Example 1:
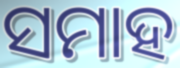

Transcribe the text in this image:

ସମାହ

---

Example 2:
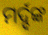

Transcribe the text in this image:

ମର୍ଦ୍ଦଙ୍କ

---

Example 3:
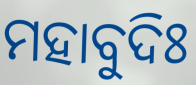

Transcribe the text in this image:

ମହାବୁଦିଃ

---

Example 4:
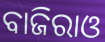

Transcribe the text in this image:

ବାଜିରାଓ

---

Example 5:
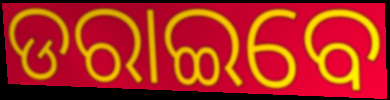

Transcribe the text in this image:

ଡରାଇବେ